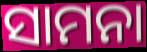
ସାମନା